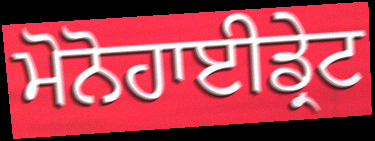
ਮੋਨੋਹਾਈਡ੍ਰੇਟ